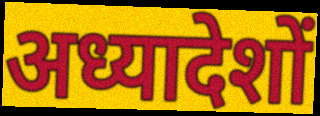
अध्यादेशों